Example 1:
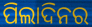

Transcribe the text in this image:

ପିଲାଦିନର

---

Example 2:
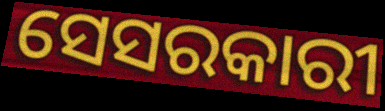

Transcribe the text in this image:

ସେସରକାରୀ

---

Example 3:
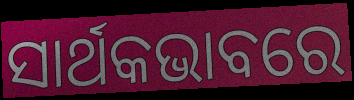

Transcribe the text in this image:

ସାର୍ଥକଭାବରେ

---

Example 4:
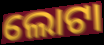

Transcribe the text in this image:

ଲୋଟା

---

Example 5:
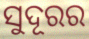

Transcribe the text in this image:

ସୁଦୂରର